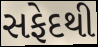
સફેદથી